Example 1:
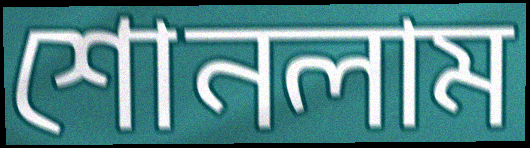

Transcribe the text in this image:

শোনলাম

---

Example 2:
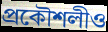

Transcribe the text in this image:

প্রকৌশলীও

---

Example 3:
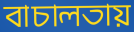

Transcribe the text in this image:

বাচালতায়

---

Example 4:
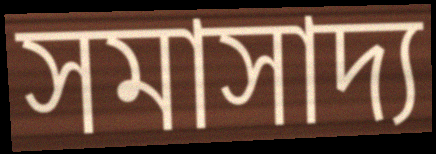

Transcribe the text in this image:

সমাসাদ্য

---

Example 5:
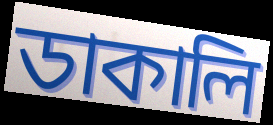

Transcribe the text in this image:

ডাকালি